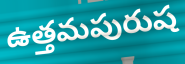
ఉత్తమపురుష